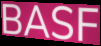
BASF